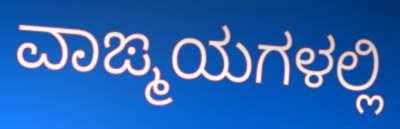
ವಾಙ್ಮಯಗಳಲ್ಲಿ